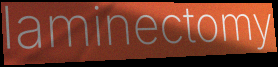
laminectomy